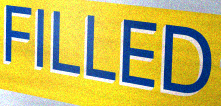
FILLED